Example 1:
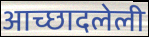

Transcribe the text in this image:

आच्छादलेली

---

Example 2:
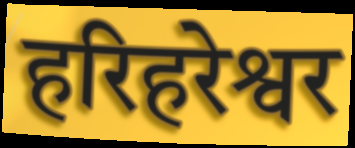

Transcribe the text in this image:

हरिहरेश्वर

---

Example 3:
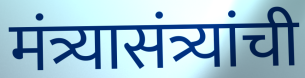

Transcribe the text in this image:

मंत्र्यासंत्र्यांची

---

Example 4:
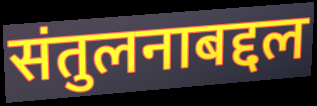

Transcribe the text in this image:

संतुलनाबद्दल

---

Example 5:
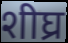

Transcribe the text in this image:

शीघ्र